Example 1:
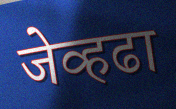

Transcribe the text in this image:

जेव्हढा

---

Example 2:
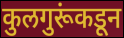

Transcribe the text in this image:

कुलगुरूंकडून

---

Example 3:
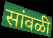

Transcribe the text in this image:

सांवळी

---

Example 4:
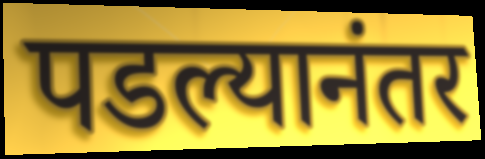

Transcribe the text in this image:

पडल्यानंतर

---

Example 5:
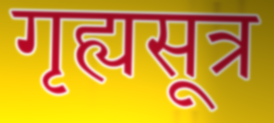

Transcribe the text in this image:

गृह्यसूत्र